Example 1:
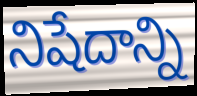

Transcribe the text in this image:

నిషేదాన్ని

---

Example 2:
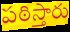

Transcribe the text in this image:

పఠిస్తారు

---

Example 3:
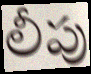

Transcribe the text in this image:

లీపు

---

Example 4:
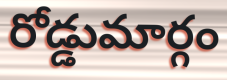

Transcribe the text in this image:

రోడ్డుమార్గం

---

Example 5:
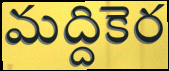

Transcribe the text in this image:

మద్దికెర